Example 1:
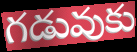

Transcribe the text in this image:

గడువుకు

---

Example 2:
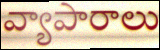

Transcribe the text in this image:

వ్యాపారాలు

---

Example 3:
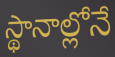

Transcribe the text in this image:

స్థానాల్లోనే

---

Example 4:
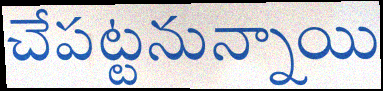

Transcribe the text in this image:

చేపట్టనున్నాయి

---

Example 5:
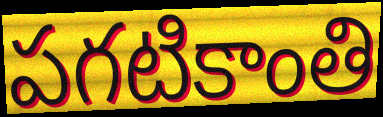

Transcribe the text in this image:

పగటికాంతి